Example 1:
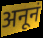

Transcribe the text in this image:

अनूनं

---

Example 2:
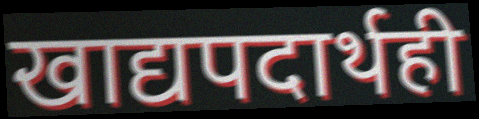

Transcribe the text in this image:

खाद्यपदार्थही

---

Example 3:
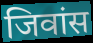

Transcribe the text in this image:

जिवांस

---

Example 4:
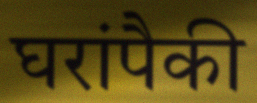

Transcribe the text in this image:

घरांपैकी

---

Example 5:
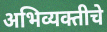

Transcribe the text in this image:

अभिव्यक्तीचे